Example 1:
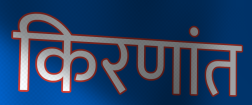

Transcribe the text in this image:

किरणांत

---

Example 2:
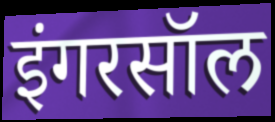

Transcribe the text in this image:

इंगरसॉल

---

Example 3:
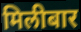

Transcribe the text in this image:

मिलीबार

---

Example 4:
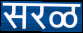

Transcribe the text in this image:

सरळ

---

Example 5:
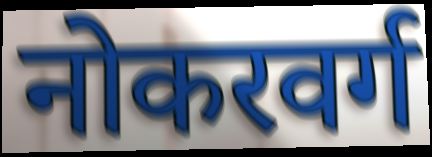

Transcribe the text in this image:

नोकरवर्ग